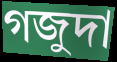
গজুদা